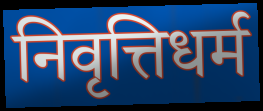
निवृत्तिधर्म